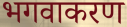
भगवाकरण